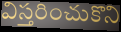
విస్తరించుకొని